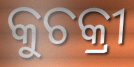
କୁଚକ୍ରୀ